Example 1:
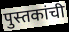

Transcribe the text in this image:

पुस्तकांची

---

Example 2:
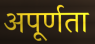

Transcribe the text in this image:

अपूर्णता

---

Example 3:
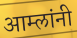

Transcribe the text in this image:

आम्लांनी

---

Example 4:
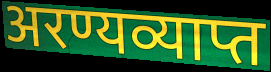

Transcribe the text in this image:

अरण्यव्याप्त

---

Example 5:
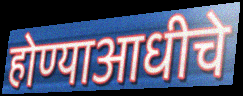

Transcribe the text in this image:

होण्याआधीचे